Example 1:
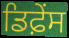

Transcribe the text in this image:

ਡਿਫ਼ੇੰਸ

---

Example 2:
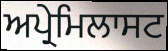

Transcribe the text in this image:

ਅਪ੍ਰੇਮਿਲਾਸਟ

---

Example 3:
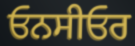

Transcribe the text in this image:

ਓਨਸੀਓਰ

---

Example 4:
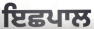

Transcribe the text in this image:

ਇਛਪਾਲ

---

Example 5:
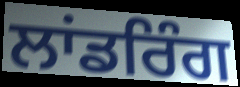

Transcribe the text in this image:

ਲਾਂਡਰਿੰਗ